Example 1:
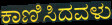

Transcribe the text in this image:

ಕಾಣಿಸಿದವಳು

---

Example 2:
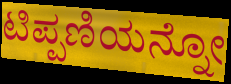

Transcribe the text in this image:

ಟಿಪ್ಪಣಿಯನ್ನೋ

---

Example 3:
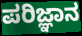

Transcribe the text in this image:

ಪರಿಜ್ಞಾನ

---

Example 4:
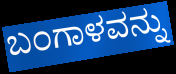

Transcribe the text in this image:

ಬಂಗಾಳವನ್ನು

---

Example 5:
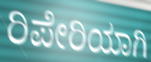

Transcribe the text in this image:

ರಿಪೇರಿಯಾಗಿ